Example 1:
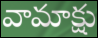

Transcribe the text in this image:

వామాక్షు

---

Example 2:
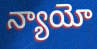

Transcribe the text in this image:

న్యాయో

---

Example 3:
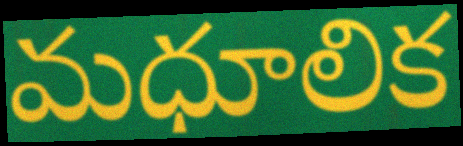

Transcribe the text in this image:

మధూలిక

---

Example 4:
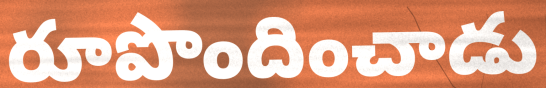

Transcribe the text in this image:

రూపొందించాడు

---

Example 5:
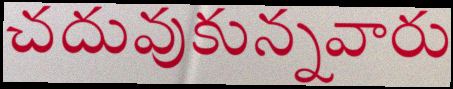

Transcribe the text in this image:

చదువుకున్నవారు